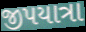
જીપયાત્રા